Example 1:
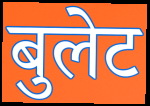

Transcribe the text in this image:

बुलेट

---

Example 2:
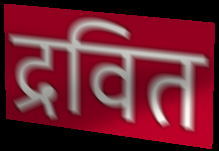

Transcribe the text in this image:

द्रवित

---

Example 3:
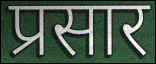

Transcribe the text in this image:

प्रसार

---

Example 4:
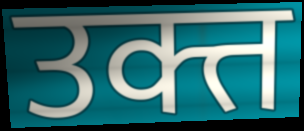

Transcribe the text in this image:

उक्त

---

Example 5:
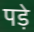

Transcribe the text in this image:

पड़े